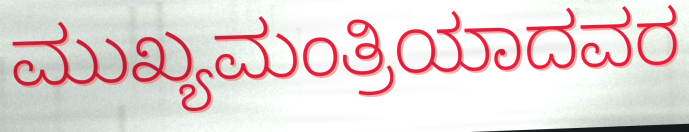
ಮುಖ್ಯಮಂತ್ರಿಯಾದವರ